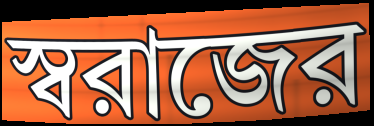
স্বরাজের